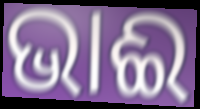
ଭାଈ